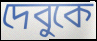
দেবুকে